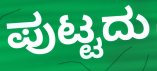
ಪುಟ್ಟದು